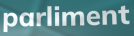
parliment